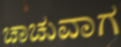
ಚಾಚುವಾಗ